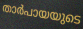
താർപായയുടെ